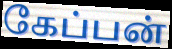
கேப்பன்